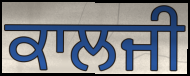
ਕਾਲਜੀ